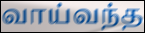
வாய்வந்த